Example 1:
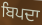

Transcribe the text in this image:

ਬਿਪਦਾ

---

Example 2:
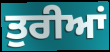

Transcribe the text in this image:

ਤੁਰੀਆਂ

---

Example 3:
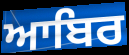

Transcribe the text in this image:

ਆਬਿਰ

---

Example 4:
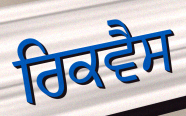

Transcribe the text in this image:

ਰਿਕਵੈਸ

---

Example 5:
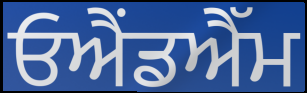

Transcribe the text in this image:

ਓਐਂਡਐੱਮ